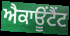
ਐਕਾਊਂਟੈਂਟ